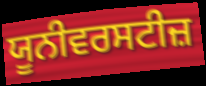
ਯੂਨੀਵਰਸਟੀਜ਼